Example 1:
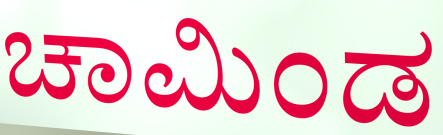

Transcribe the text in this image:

ಚಾಮಿಂಡ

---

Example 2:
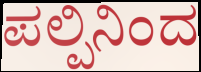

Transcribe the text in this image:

ಪಲ್ಪಿನಿಂದ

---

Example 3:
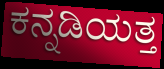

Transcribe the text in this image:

ಕನ್ನಡಿಯತ್ತ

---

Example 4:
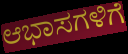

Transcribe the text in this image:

ಆಭಾಸಗಳಿಗೆ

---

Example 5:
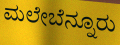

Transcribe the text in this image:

ಮಲೇಬೆನ್ನೂರು